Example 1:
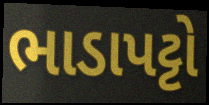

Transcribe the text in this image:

ભાડાપટ્ટો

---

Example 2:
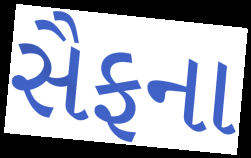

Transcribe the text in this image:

સૈફના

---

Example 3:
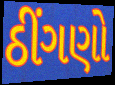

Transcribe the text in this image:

ઠીંગણો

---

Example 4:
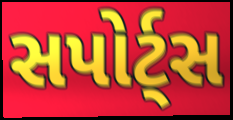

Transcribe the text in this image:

સપોર્ટ્સ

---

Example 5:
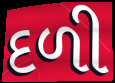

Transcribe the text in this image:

દળી